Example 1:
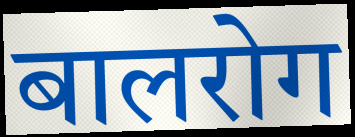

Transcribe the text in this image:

बालरोग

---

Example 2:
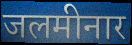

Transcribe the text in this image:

जलमीनार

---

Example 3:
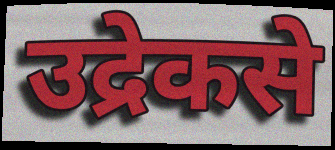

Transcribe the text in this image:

उद्रेकसे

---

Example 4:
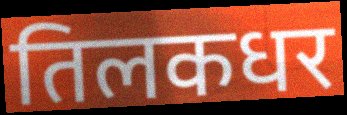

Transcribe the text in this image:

तिलकधर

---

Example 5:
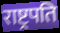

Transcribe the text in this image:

राष्ट्र्रपति